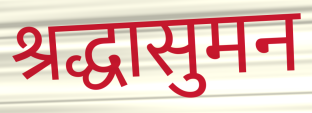
श्रद्धासुमन